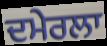
ਦਮੇਰਲਾ